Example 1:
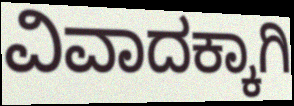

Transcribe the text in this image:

ವಿವಾದಕ್ಕಾಗಿ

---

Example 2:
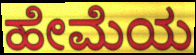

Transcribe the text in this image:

ಹೇಮೆಯ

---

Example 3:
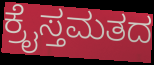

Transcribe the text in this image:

ಕ್ರೈಸ್ತಮತದ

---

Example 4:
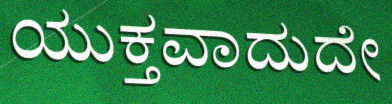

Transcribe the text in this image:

ಯುಕ್ತವಾದುದೇ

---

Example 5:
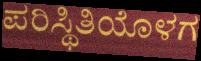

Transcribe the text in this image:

ಪರಿಸ್ಥಿತಿಯೊಳಗ